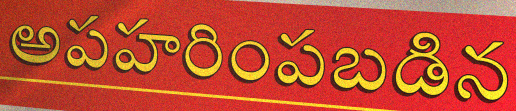
అపహరింపబడిన